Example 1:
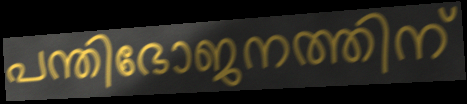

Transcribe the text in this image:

പന്തിഭോജനത്തിന്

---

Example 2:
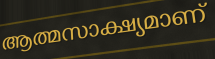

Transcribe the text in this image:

ആത്മസാക്ഷ്യമാണ്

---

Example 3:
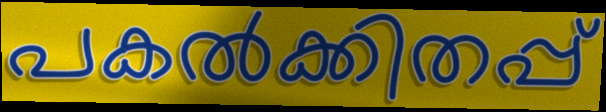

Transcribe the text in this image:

പകൽക്കിതപ്പ്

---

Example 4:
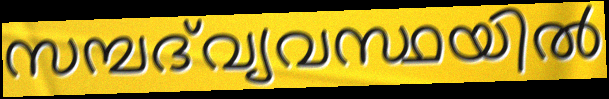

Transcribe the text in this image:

സമ്പദ്‌വ്യവസ്ഥയിൽ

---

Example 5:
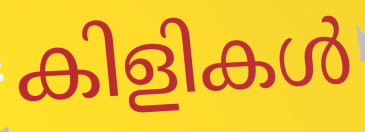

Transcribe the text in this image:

കിളികൾ